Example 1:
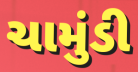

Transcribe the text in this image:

ચામુંડી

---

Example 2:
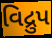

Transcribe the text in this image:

વિદ્રુપ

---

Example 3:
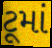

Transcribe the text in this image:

ટૂમાં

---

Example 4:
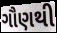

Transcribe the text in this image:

ગૌણથી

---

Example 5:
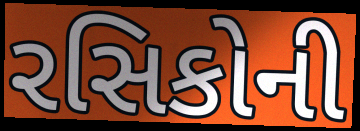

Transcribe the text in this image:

રસિકોની